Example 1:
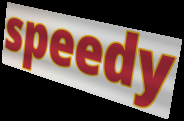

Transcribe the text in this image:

speedy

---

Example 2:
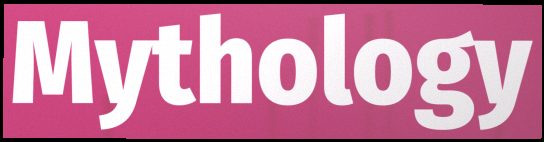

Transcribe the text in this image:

Mythology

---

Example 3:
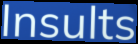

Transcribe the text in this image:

Insults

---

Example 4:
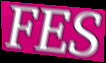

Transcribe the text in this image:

FES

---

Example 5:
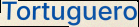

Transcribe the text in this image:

Tortuguero